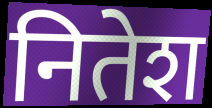
नितेश